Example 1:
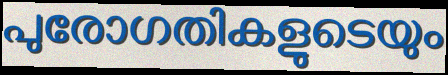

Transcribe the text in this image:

പുരോഗതികളുടെയും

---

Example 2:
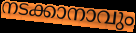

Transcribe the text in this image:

നടക്കാനാവും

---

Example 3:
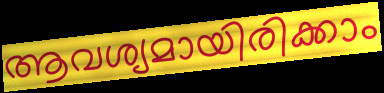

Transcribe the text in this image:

ആവശ്യമായിരിക്കാം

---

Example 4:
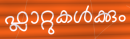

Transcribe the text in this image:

ഫ്ലാറ്റുകൾക്കും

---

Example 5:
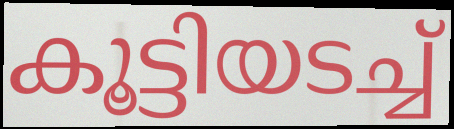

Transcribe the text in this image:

കൂട്ടിയടച്ച്